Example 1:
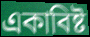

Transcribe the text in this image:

একাবিষ্ট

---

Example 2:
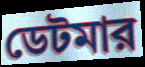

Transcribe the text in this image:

ডেটমার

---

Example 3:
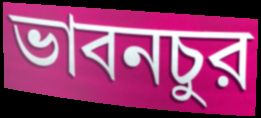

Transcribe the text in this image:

ভাবনচুর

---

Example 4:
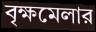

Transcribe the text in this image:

বৃক্ষমেলার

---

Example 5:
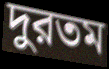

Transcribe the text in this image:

দুরতম